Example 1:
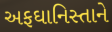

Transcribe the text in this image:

અફઘાનિસ્તાને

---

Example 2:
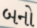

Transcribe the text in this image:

બનો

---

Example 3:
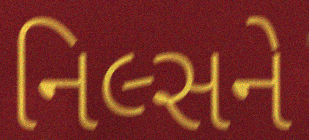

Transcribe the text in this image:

નિલ્સને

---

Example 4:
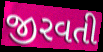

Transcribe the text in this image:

જીરવતી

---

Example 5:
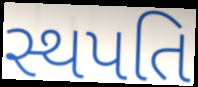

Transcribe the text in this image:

સ્થપતિ